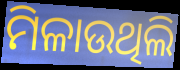
ମିଳାଉଥିଲି